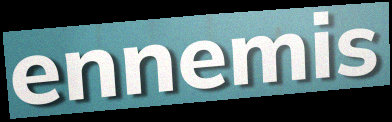
ennemis